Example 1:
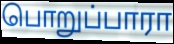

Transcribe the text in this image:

பொறுப்பாரா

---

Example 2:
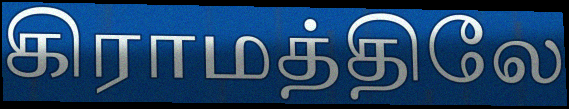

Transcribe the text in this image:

கிராமத்திலே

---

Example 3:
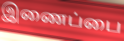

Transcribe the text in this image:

இணைப்பை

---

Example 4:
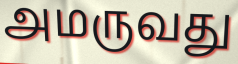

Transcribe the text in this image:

அமருவது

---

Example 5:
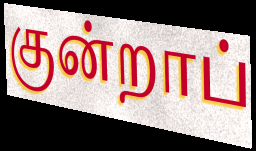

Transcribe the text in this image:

குன்றாப்